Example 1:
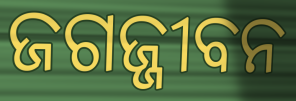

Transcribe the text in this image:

ଜଗଜ୍ଜୀବନ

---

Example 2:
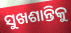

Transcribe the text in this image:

ସୁଖଶାନ୍ତିକୁ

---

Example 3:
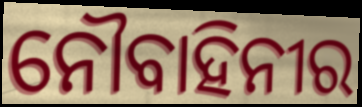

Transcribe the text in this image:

ନୌବାହିନୀର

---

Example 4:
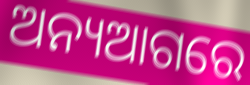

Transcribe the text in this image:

ଅନ୍ୟଆଗରେ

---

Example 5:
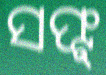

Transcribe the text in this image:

ସଫ୍ଟ୍